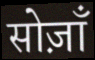
सोज़ाँ